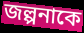
জল্পনাকে